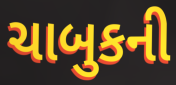
ચાબુકની